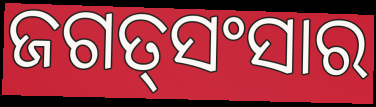
ଜଗତ୍‌ସଂସାର